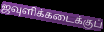
ஜவுளிக்கடைக்குப்